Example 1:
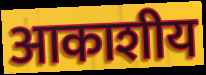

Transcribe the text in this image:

आकाशीय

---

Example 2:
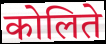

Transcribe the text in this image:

कोलिते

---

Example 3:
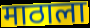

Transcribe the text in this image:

माठाला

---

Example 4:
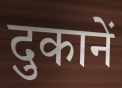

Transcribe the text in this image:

दुकानें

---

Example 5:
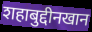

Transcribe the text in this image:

शहाबुद्दीनखान